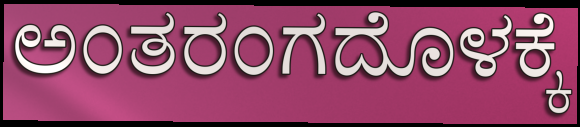
ಅಂತರಂಗದೊಳಕ್ಕೆ